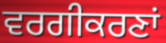
ਵਰਗੀਕਰਣਾਂ